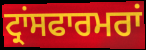
ਟ੍ਰਾਂਸਫਾਰਮਰਾਂ